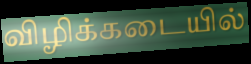
விழிக்கடையில்